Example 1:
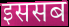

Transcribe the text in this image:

इससब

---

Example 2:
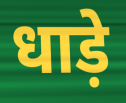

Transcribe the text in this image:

धाड़े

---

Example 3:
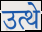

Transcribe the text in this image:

उत्थे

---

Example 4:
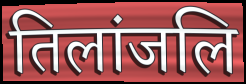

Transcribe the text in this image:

तिलांजलि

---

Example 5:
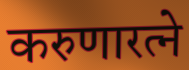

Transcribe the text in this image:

करुणारत्ने